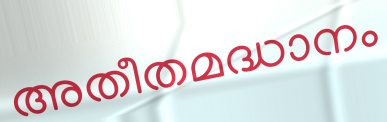
അതീതമദ്ധാനം